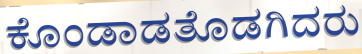
ಕೊಂಡಾಡತೊಡಗಿದರು